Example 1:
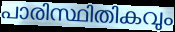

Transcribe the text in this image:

പാരിസ്ഥിതികവും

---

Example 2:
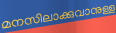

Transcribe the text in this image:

മനസിലാക്കുവാനുള്ള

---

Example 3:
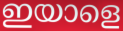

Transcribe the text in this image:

ഇയാളെ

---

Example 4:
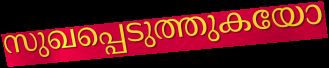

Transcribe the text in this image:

സുഖപ്പെടുത്തുകയോ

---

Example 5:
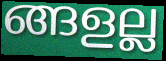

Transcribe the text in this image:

ങ്ങളല്ല